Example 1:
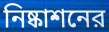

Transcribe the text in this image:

নিষ্কাশনের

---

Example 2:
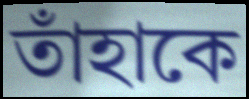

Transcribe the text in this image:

তাঁহাকে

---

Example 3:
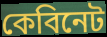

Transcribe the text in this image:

কেবিনেট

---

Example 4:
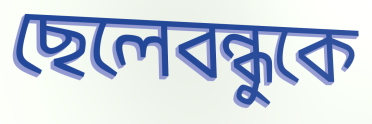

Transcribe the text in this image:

ছেলেবন্ধুকে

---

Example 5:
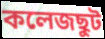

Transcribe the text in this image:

কলেজছুট